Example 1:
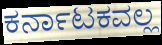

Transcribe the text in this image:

ಕರ್ನಾಟಕವಲ್ಲ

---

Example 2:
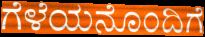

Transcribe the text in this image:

ಗೆಳೆಯನೊಂದಿಗೆ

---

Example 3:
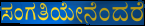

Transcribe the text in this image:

ಸಂಗತಿಯೇನೆಂದರೆ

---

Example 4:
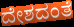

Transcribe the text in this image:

ದೇಶದಂತೆ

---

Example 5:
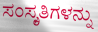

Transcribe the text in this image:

ಸಂಸ್ಕೃತಿಗಳನ್ನು